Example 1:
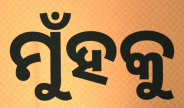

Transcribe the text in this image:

ମୁଁହକୁ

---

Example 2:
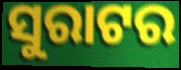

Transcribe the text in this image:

ସୁରାଟର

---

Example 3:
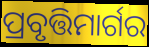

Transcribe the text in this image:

ପ୍ରବୃତ୍ତିମାର୍ଗର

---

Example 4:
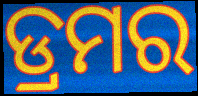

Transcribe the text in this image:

ଡ୍ରମର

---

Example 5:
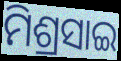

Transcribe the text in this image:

ମିଶ୍ରସାଇ